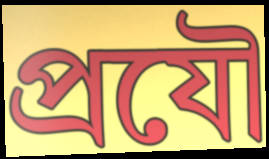
প্রযৌ